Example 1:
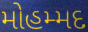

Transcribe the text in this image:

મોહમ્મદ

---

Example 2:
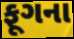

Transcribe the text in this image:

ફૂગના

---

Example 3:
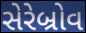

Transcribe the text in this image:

સેરેબ્રોવ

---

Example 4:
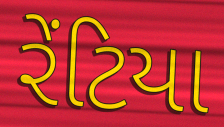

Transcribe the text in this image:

રેંટિયા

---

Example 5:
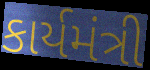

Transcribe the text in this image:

કાર્યમંત્રી